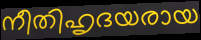
നീതിഹൃദയരായ